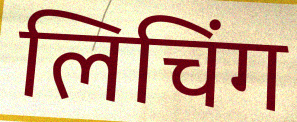
लिचिंग